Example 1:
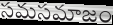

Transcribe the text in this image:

సమసమాజం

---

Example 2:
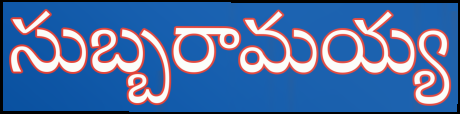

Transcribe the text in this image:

సుబ్బరామయ్య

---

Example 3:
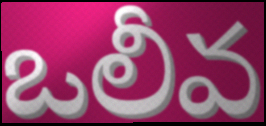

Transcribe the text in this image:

ఒలీవ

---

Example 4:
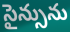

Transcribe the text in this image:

సైన్సును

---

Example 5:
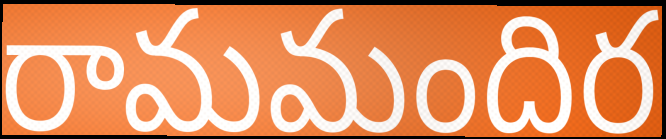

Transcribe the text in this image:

రామమందిర